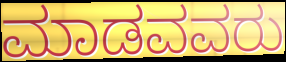
ಮಾಡವವರು